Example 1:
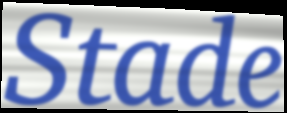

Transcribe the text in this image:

Stade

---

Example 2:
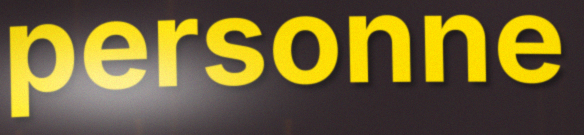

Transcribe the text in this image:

personne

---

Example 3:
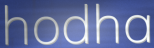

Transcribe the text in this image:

hodha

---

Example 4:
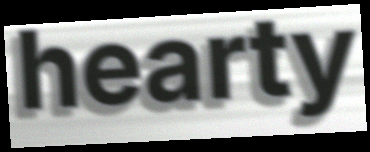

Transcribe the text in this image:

hearty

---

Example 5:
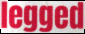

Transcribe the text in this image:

legged